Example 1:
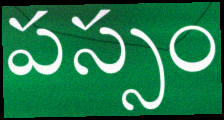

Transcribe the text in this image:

పస్సం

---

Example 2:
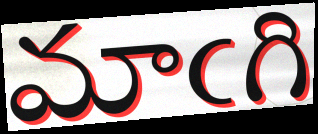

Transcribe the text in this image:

మాఁగి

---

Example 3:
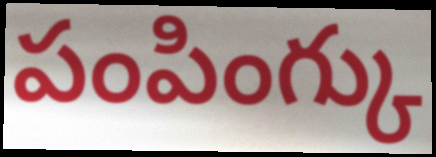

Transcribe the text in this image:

పంపింగ్కు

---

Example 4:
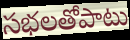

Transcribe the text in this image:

సభలతోపాటు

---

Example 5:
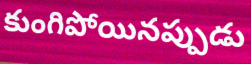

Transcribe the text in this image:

కుంగిపోయినప్పుడు